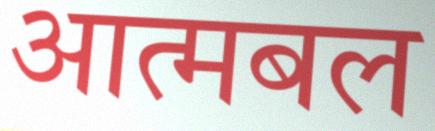
आत्मबल